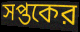
সপ্তকের